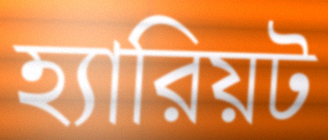
হ্যারিয়ট